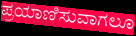
ಪ್ರಯಾಣಿಸುವಾಗಲೂ